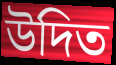
উদিত